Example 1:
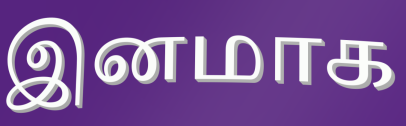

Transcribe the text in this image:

இனமாக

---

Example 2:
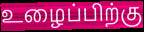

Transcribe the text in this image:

உழைப்பிற்கு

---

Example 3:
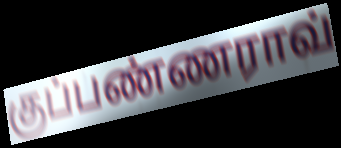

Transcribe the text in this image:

குப்பண்ணராவ்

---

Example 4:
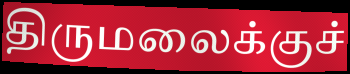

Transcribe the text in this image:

திருமலைக்குச்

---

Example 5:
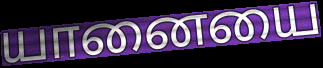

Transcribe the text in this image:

யானையை